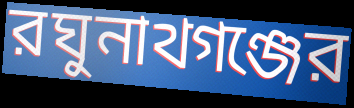
রঘুনাথগঞ্জের